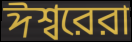
ঈশ্বরেরা